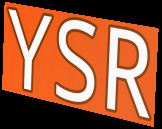
YSR